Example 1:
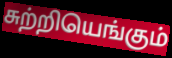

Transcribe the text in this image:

சுற்றியெங்கும்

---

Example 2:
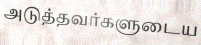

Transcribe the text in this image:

அடுத்தவர்களுடைய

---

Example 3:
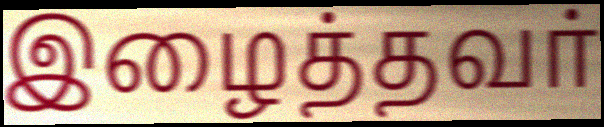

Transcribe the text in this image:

இழைத்தவர்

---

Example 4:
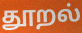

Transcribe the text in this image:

தூறல்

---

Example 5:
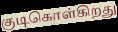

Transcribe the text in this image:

குடிகொள்கிறது